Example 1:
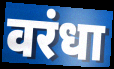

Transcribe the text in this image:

वरंधा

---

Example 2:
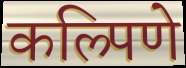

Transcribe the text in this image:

कल्पिणे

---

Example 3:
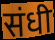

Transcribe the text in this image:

संधी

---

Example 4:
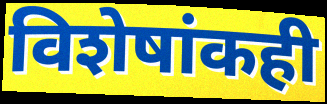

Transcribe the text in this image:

विशेषांकही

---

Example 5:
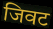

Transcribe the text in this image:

जिवट